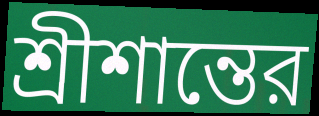
শ্রীশান্তের